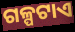
ଗଳ୍ପଟାଏ